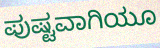
ಪುಷ್ಟವಾಗಿಯೂ